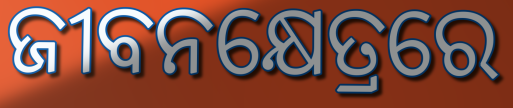
ଜୀବନକ୍ଷେତ୍ରରେ